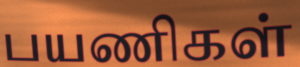
பயணிகள்